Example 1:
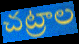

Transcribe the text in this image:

చట్రాల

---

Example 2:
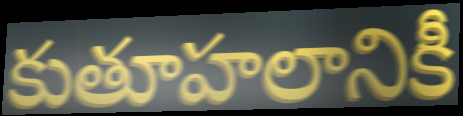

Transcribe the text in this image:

కుతూహలానికీ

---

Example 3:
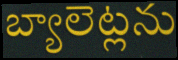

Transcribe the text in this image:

బ్యాలెట్లను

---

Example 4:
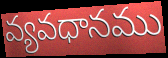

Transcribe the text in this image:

వ్యవధానము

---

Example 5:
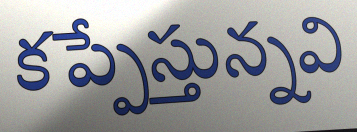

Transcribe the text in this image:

కప్పేస్తున్నవి